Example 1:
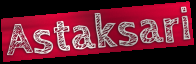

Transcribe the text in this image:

Astaksari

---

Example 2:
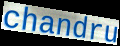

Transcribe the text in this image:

chandru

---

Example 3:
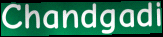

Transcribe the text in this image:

Chandgadi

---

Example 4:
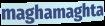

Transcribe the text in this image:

maghamaghta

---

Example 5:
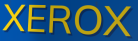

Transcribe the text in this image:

XEROX